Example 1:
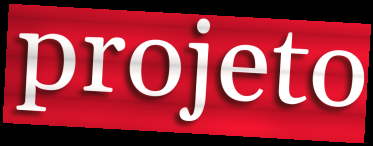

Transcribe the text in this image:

projeto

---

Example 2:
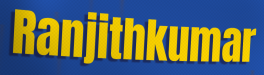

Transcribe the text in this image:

Ranjithkumar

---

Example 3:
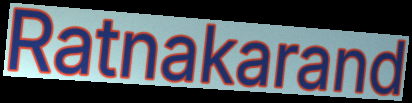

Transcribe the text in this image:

Ratnakarand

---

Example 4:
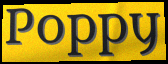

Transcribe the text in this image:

Poppy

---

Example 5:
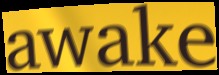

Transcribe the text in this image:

awake